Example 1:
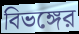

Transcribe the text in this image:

বিভঙ্গের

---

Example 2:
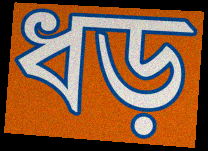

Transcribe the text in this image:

ধড়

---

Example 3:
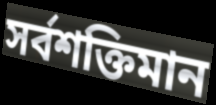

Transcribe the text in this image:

সর্বশক্তিমান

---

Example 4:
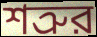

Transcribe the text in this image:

শত্রুর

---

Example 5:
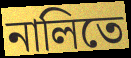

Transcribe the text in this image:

নালিতে